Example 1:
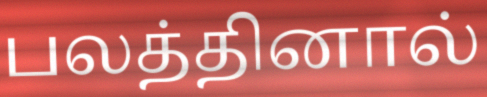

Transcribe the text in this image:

பலத்தினால்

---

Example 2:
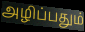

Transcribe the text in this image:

அழிப்பதும்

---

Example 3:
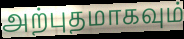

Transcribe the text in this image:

அற்புதமாகவும்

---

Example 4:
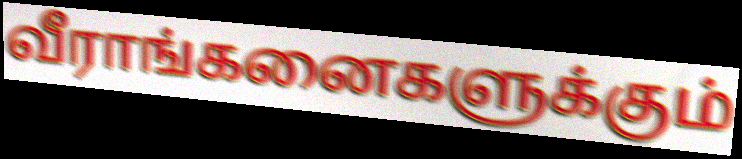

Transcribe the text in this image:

வீராங்கனைகளுக்கும்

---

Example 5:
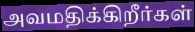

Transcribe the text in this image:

அவமதிக்கிறீர்கள்